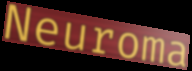
Neuroma